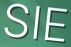
SIE